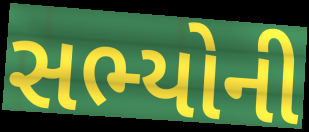
સભ્યોની